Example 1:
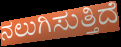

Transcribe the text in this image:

ನಲುಗಿಸುತ್ತಿದೆ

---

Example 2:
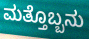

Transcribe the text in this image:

ಮತ್ತೊಬ್ಬನು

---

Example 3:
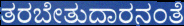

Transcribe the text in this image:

ತರಬೇತುದಾರನಂತೆ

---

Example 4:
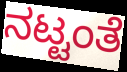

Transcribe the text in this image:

ನಟ್ಟಂತೆ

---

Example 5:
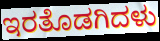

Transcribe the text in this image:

ಇರತೊಡಗಿದಳು